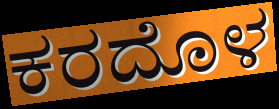
ಕರದೊಳ